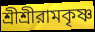
শ্রীশ্রীরামকৃষ্ণ